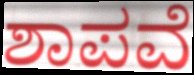
ಶಾಪವೆ